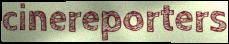
cinereporters